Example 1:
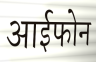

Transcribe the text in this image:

आईफोन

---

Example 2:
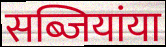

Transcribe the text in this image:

सब्जियांया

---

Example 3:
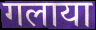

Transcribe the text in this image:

गलाया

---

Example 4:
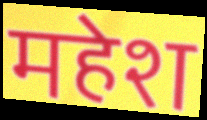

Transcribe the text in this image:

महेश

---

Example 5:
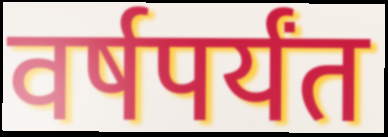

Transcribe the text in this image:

वर्षपर्यंत